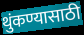
थुंकण्यासाठी